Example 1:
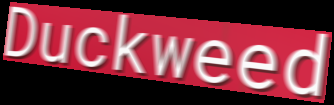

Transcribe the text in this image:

Duckweed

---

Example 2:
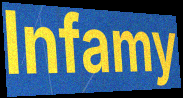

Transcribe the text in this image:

Infamy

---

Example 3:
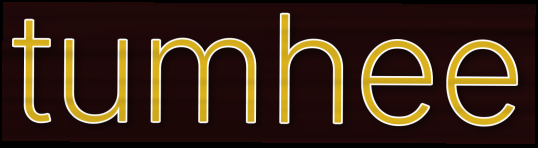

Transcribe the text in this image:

tumhee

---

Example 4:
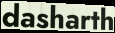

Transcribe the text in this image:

dasharth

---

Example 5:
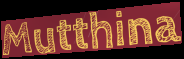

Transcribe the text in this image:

Mutthina